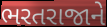
ભરતરાજાને